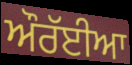
ਔਰੱਈਆ